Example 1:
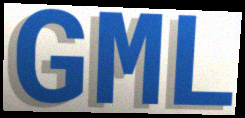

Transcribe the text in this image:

GML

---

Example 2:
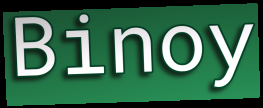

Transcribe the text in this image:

Binoy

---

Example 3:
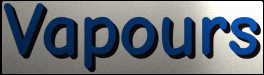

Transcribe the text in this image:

Vapours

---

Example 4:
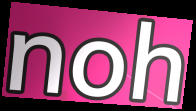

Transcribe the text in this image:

noh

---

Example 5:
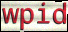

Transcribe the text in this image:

wpid